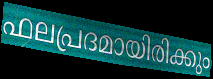
ഫലപ്രദമായിരിക്കും